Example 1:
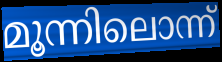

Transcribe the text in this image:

മൂന്നിലൊന്ന്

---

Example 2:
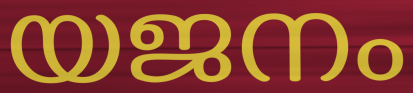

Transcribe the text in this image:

യജനം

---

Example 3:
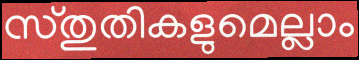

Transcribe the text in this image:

സ്തുതികളുമെല്ലാം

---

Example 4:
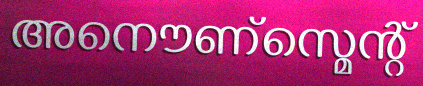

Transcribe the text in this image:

അനൌണ്സ്മെന്റ്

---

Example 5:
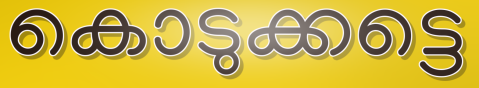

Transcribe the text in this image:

കൊടുക്കട്ടെ